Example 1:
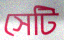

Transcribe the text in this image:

সেটি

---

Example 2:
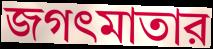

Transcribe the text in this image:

জগৎমাতার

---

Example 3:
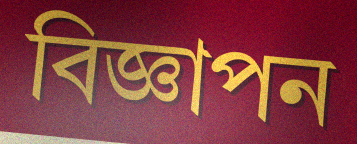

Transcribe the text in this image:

বিজ্ঞাপন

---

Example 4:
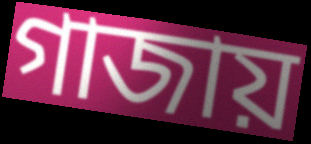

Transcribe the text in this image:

গাজায়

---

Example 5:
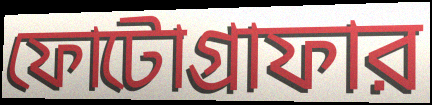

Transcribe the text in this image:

ফোটোগ্রাফার